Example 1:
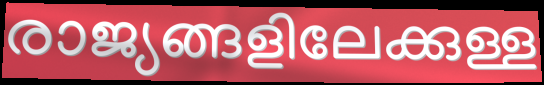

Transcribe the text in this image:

രാജ്യങ്ങളിലേക്കുള്ള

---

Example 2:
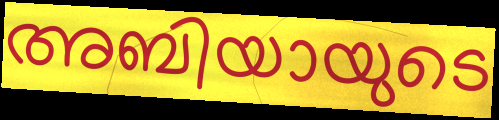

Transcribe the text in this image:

അബിയായുടെ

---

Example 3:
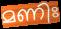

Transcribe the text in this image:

മണിഃ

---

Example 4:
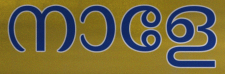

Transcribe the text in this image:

നാളേ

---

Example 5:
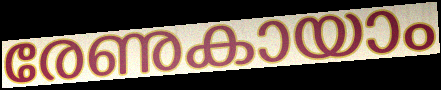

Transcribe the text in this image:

രേണുകായാം